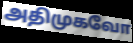
அதிமுகவோ